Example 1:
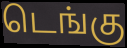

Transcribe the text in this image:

டெங்கு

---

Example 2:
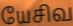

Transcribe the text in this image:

யேசிவ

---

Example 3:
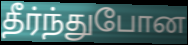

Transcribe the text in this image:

தீர்ந்துபோன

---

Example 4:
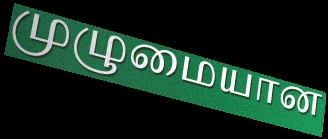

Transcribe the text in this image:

முழுமையான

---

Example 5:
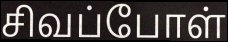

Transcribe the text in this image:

சிவப்போள்